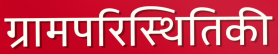
ग्रामपरिस्थितिकी